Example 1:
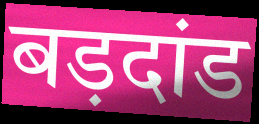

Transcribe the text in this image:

बड़दांड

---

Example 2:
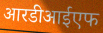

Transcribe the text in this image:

आरडीआईएफ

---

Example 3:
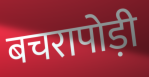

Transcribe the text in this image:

बचरापोड़ी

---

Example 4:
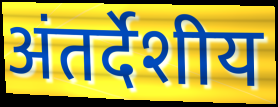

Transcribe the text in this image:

अंतर्देशीय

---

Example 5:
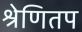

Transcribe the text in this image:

श्रेणितप